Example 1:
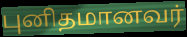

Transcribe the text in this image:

புனிதமானவர்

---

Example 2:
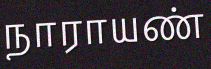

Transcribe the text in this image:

நாராயண்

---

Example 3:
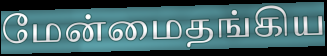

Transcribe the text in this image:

மேன்மைதங்கிய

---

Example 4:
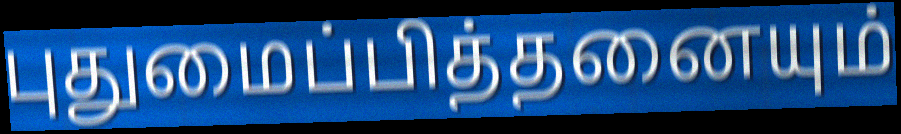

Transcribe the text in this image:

புதுமைப்பித்தனையும்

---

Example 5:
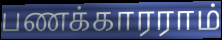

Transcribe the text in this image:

பணக்காரராம்